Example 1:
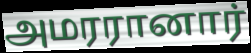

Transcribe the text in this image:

அமரரானார்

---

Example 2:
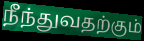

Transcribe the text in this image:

நீந்துவதற்கும்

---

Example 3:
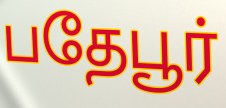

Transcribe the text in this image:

பதேபூர்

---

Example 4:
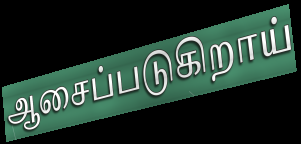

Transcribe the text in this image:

ஆசைப்படுகிறாய்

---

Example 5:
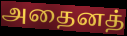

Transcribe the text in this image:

அதைனத்